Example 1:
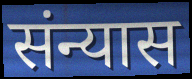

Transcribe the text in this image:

संन्यास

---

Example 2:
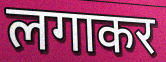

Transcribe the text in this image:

लगाकर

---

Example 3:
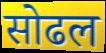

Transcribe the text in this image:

सोढल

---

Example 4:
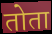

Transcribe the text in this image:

तोता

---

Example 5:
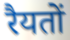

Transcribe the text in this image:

रैयतों